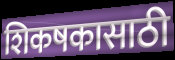
शिकषकासाठी